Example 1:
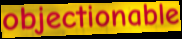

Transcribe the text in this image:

objectionable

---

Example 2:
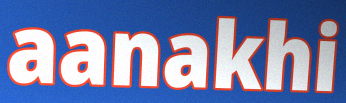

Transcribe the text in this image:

aanakhi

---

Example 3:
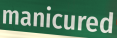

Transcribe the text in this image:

manicured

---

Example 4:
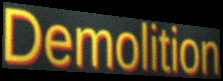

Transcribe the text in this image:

Demolition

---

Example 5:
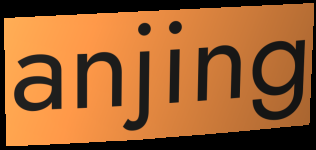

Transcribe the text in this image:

anjing